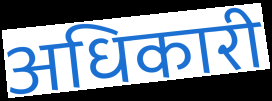
अधिकारी